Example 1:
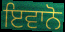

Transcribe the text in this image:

ਇਵਾਨੋ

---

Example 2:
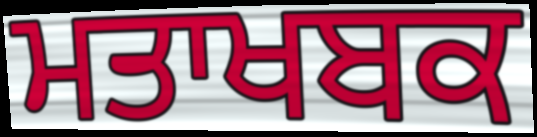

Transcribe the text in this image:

ਮਤਾਖਬਕ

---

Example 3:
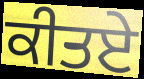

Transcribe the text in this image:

ਕੀਤਏ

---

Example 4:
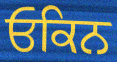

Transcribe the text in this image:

ਓਕਿਨ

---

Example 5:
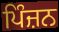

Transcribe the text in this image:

ਪਿੰਜ਼ਨ